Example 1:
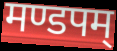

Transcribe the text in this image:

मण्डपम्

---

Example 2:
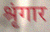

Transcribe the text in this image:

श्रृंगार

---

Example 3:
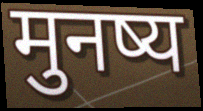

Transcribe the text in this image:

मुनष्य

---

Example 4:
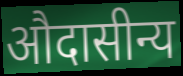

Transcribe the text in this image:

औदासीन्य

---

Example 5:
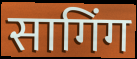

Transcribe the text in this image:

सागिंग